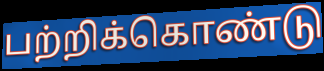
பற்றிக்கொண்டு